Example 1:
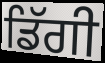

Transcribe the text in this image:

ਡਿੱਗੀ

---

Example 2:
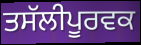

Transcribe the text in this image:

ਤਸੱਲੀਪੂਰਵਕ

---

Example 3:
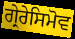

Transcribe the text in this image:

ਗ੍ਰੇਰੇਸਿਮੋਵ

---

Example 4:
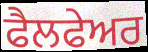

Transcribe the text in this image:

ਫੈਲਫੇਅਰ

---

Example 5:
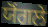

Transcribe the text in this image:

ਯੋਂਗਲੇ